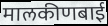
मालकीणबाई